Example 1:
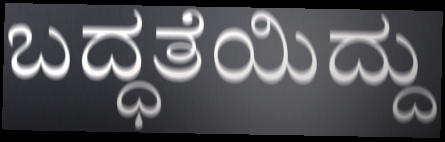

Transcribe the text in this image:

ಬದ್ಧತೆಯಿದ್ದು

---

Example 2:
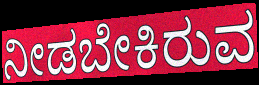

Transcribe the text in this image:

ನೀಡಬೇಕಿರುವ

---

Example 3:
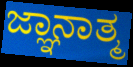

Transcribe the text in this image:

ಜ್ಞಾನಾತ್ಮ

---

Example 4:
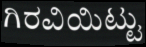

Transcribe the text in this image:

ಗಿರವಿಯಿಟ್ಟು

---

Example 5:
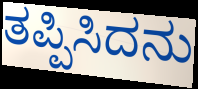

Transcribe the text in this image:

ತಪ್ಪಿಸಿದನು